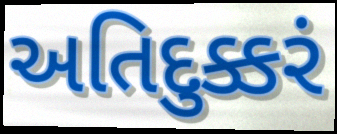
અતિદુક્કરં